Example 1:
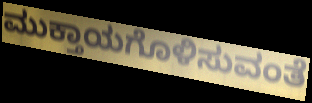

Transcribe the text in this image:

ಮುಕ್ತಾಯಗೊಳಿಸುವಂತೆ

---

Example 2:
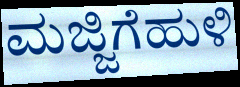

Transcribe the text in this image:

ಮಜ್ಜಿಗೆಹುಳಿ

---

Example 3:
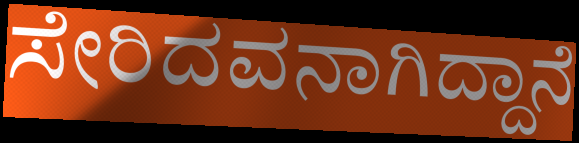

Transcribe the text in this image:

ಸೇರಿದವನಾಗಿದ್ದಾನೆ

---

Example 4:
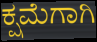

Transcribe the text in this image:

ಕ್ಷಮೆಗಾಗಿ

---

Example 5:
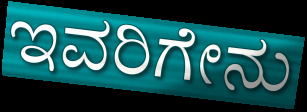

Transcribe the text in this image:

ಇವರಿಗೇನು